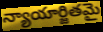
న్యాయార్జితమై